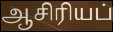
ஆசிரியப்